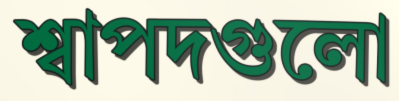
শ্বাপদগুলো